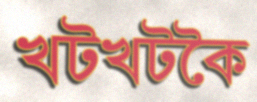
খটখটকৈ